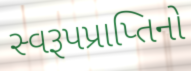
સ્વરૂપપ્રાપ્તિનો